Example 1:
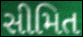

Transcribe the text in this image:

સીમિત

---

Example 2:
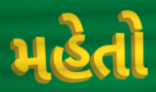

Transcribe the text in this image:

મહેતો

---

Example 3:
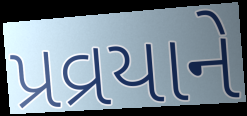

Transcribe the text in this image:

પ્રવ્રયાને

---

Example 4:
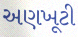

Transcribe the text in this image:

અણખૂટી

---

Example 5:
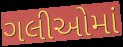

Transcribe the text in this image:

ગલીઓમાં